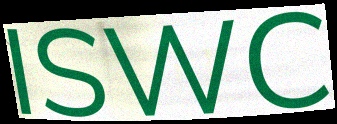
ISWC